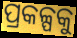
ପ୍ରକଳ୍ପକୁ